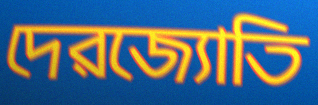
দেৱজ্যোতি